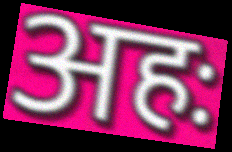
अहः